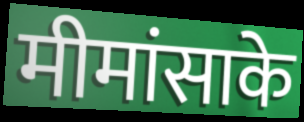
मीमांसाके